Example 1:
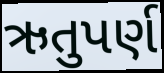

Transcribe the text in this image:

ઋતુપર્ણ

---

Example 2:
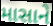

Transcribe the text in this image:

માસાને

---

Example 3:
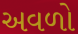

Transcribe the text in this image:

અવળો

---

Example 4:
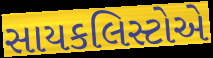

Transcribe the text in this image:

સાયકલિસ્ટોએ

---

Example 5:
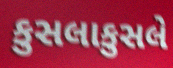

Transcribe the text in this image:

કુસલાકુસલે